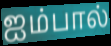
ஐம்பால்